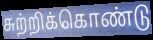
சுற்றிக்கொண்டு